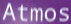
Atmos